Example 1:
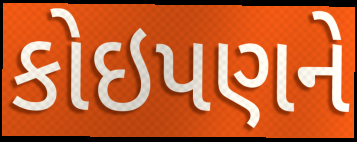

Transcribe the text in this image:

કોઇપણને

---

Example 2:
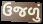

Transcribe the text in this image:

ઉજળું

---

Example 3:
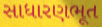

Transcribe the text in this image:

સાધારણભૂત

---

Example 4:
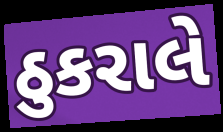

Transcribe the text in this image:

ઠુકરાલે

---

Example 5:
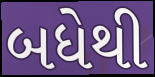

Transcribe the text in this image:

બધેથી